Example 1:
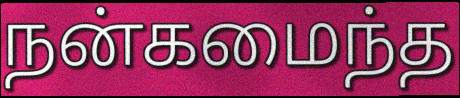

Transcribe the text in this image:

நன்கமைந்த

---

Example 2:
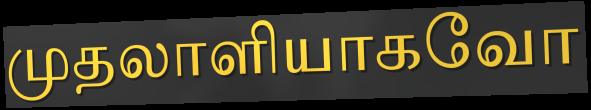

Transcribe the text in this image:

முதலாளியாகவோ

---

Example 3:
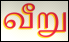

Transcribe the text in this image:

வீறு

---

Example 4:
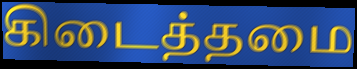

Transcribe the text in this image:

கிடைத்தமை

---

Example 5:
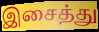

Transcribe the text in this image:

இசைத்து